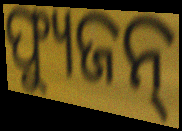
ଫ୍ୟୁଜନ୍